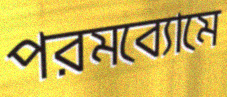
পরমব্যোমে